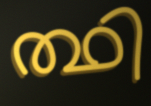
ത്ഥി